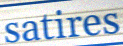
satires